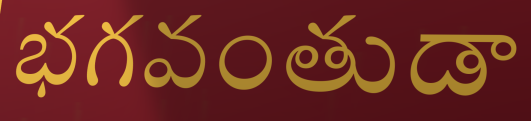
భగవంతుడా